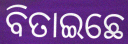
ବିତାଇଛେ